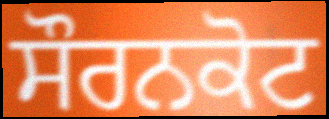
ਸੌਰਨਕੋਟ